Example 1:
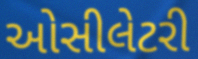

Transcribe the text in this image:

ઓસીલેટરી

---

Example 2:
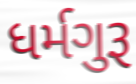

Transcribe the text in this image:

ધર્મગુરૂ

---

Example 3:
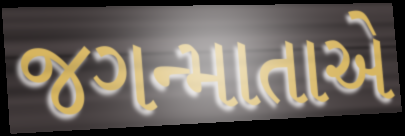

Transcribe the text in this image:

જગન્માતાએ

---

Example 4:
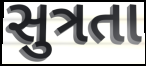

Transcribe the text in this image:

સુત્રતા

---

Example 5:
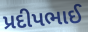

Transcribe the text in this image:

પ્રદીપભાઈ